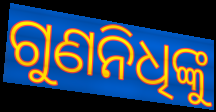
ଗୁଣନିଧିଙ୍କୁ